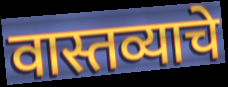
वास्तव्याचे